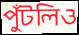
পুঁটলিও